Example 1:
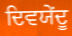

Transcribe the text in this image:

ਦਿਵਯੇਂਦੂ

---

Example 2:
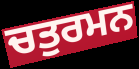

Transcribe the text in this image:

ਚਤੁਰਮਨ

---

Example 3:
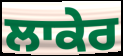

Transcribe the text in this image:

ਲਾਕੇਰ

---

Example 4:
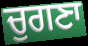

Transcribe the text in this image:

ਚੁਗਣਾ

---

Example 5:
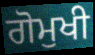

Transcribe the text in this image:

ਗੋਮੁਖੀ